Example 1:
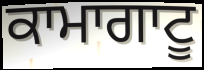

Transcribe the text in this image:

ਕਾਮਾਗਾਟੂ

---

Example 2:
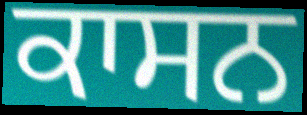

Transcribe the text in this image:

ਕਾਸਨ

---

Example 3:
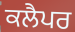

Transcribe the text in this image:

ਕਲੈਪਰ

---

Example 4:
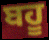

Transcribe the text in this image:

ਬਹੂ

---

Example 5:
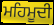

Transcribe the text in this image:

ਮਹਿਮੂਦੀ